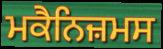
ਮਕੈਨਿਜ਼ਮਸ